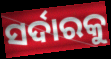
ସର୍ଦାରକୁ